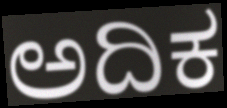
ಅದಿಕ